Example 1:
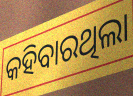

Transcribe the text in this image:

କହିବାରଥିଲା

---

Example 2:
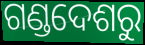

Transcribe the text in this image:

ଗଣ୍ଡଦେଶରୁ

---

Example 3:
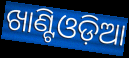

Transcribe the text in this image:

ଖାଣ୍ଟିଓଡ଼ିଆ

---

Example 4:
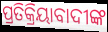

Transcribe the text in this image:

ପ୍ରତିକ୍ରିୟାବାଦୀଙ୍କ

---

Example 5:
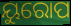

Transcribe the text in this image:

ୟୁରୋପ